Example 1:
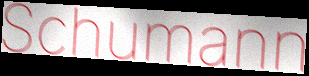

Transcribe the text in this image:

Schumann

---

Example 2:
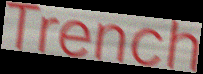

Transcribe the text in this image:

Trench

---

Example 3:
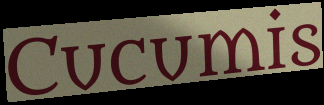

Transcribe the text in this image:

Cucumis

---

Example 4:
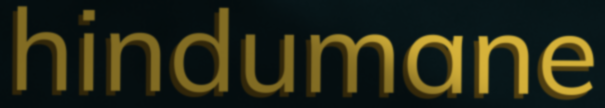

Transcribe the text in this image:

hindumane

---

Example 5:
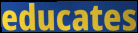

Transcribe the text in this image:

educates